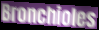
Bronchioles